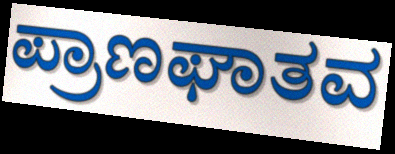
ಪ್ರಾಣಘಾತವ